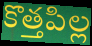
కొత్తపిల్ల